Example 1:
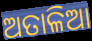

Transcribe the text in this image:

ଅତାଳିଆ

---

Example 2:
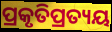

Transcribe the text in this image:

ପ୍ରକୃତିପ୍ରତ୍ୟୟ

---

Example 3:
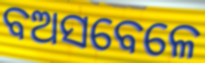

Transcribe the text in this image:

ବଅସବେଳେ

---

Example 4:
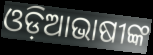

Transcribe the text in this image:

ଓଡ଼ିଆଭାଷୀଙ୍କ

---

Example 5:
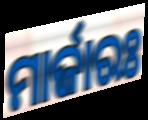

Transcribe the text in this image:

ମାର୍ଜାରଃ